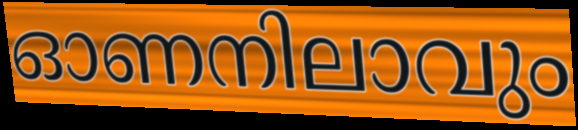
ഓണനിലാവും